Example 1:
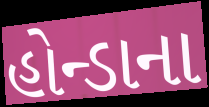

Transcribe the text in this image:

હોન્ડાના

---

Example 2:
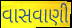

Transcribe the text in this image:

વાસવાણી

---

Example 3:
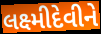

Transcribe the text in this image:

લક્ષ્મીદેવીને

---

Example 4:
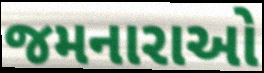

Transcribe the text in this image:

જમનારાઓ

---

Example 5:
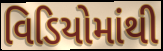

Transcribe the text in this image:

વિડિયોમાંથી